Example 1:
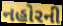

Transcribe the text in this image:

નહોરની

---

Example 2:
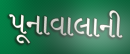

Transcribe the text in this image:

પૂનાવાલાની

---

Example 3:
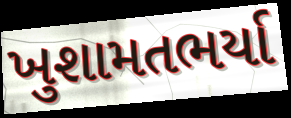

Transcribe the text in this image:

ખુશામતભર્યા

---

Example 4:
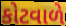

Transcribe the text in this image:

કોટવાળે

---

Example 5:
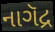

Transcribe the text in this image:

નાગૅદ્ર